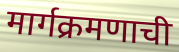
मार्गक्रमणाची